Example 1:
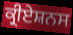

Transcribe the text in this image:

ਕ੍ਰੀਏਸ਼ਨਸ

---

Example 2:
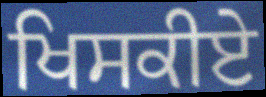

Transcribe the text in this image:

ਖਿਸਕੀਏ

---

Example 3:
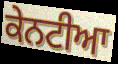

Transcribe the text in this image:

ਕੇਨਟੀਆ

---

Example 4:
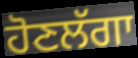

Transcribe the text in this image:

ਹੋਣਲੱਗਾ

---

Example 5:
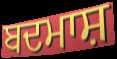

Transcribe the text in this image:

ਬਦਮਾਸ਼